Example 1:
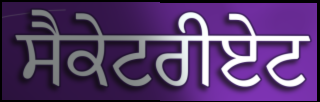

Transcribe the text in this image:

ਸੈਕੇਟਰੀਏਟ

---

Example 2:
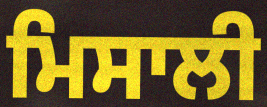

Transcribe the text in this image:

ਮਿਸਾਲੀ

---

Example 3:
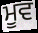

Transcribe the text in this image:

ਮੂਵ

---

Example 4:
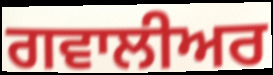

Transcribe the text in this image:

ਗਵਾਲੀਅਰ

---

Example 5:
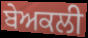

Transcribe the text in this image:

ਬੇਅਕਲੀ